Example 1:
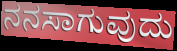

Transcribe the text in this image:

ನನಸಾಗುವುದು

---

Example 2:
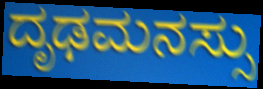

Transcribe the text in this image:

ದೃಢಮನಸ್ಸು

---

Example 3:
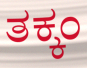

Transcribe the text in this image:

ತಕ್ಕಂ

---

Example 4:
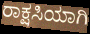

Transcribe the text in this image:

ರಾಕ್ಷಸಿಯಾಗಿ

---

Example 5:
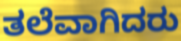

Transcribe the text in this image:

ತಲೆವಾಗಿದರು